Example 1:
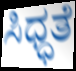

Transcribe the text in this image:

ಸಿಧ್ಧತೆ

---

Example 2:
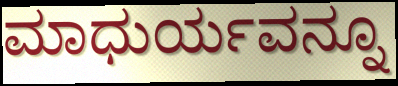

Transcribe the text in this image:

ಮಾಧುರ್ಯವನ್ನೂ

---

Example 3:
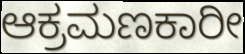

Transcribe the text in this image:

ಆಕ್ರಮಣಕಾರೀ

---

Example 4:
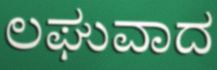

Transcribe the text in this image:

ಲಘುವಾದ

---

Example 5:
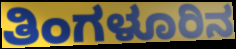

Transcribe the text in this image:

ತಿಂಗಳೂರಿನ